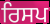
ਰਿਸਪ